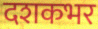
दशकभर